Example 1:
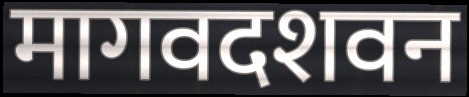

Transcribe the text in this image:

मागवदशवन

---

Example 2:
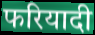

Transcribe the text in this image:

फरियादी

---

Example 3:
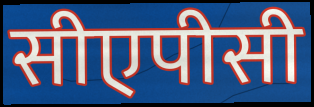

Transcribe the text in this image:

सीएपीसी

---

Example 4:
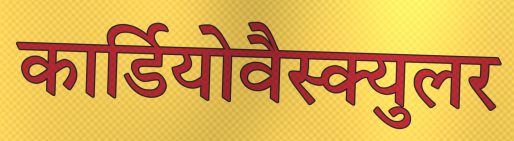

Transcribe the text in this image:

कार्डियोवैस्क्युलर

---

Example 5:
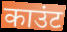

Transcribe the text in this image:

काउंट